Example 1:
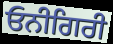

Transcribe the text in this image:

ਓਨੀਗਿਰੀ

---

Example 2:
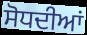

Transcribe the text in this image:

ਸੋਧਦੀਆਂ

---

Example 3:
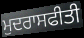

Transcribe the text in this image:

ਮੁਦਰਾਸਫੀਤੀ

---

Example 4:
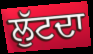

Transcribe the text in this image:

ਲੁੱਟਦਾ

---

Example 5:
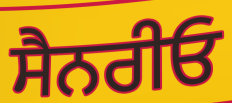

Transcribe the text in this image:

ਸੈਨਰੀਓ